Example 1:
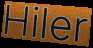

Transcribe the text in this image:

Hiler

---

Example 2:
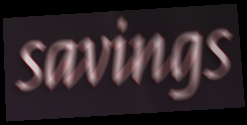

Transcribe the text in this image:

savings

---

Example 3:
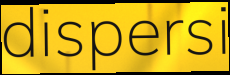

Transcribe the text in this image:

dispersi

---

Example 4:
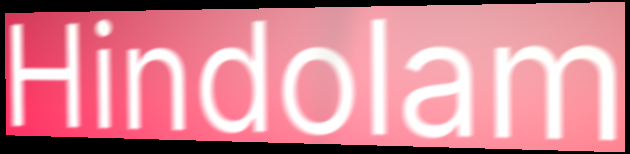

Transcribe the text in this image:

Hindolam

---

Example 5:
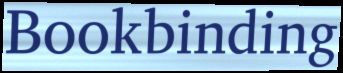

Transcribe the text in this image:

Bookbinding